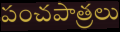
పంచపాత్రలు